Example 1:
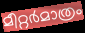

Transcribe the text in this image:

മീറ്റർമാത്രം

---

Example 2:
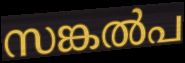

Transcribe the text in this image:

സങ്കൽപ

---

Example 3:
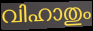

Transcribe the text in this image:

വിഹാതും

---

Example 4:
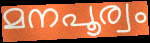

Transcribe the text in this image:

മനപൂര്വം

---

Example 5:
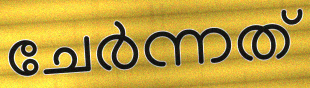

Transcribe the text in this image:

ചേർന്നത്